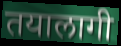
तयालागी